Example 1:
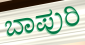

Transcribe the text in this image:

ಬಾಪುರಿ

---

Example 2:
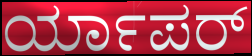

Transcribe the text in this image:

ರ್ಯಾಪರ್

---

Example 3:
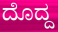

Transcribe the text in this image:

ದೊದ್ದ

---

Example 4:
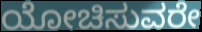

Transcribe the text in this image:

ಯೋಚಿಸುವರೇ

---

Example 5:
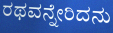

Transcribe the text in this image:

ರಥವನ್ನೇರಿದನು